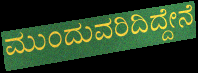
ಮುಂದುವರಿದಿದ್ದೇನೆ